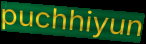
puchhiyun